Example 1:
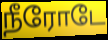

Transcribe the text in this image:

நீரோடே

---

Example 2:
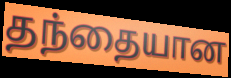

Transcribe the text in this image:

தந்தையான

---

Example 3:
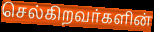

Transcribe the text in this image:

செல்கிறவர்களின்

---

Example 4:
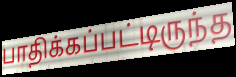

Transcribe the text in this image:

பாதிக்கப்பட்டிருந்த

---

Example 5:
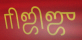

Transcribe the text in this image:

ரிஜிஜு